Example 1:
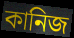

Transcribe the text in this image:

কানিজ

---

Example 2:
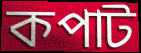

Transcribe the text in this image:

কপাট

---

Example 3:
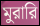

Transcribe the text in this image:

মুরারি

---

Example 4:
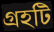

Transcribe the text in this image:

গ্রহটি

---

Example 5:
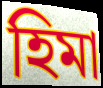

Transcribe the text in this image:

হিমা